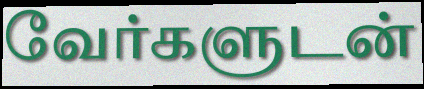
வேர்களுடன்